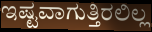
ಇಷ್ಟವಾಗುತ್ತಿರಲಿಲ್ಲ